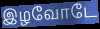
இழவோடே